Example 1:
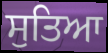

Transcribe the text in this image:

ਸੁਤਿਆ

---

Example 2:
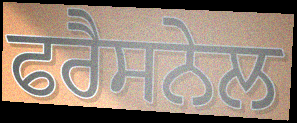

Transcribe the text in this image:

ਫਰੈਸਨੇਲ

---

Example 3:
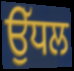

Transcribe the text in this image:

ਉੱਧਲ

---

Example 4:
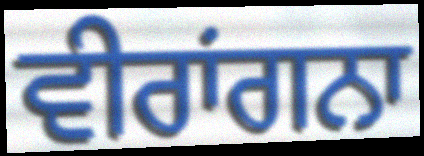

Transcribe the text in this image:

ਵੀਰਾਂਗਨਾ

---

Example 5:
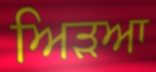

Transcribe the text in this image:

ਅਿੜਆ